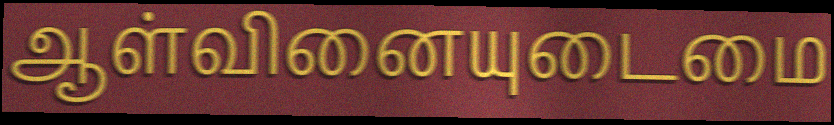
ஆள்வினையுடைமை